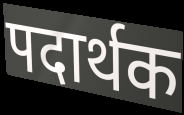
पदार्थक